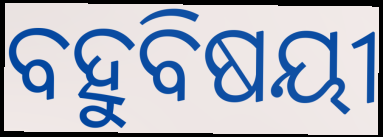
ବହୁବିଷୟୀ